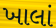
ખાલાં